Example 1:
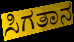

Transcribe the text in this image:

ಸಿಗತಾನ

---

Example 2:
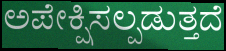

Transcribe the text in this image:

ಅಪೇಕ್ಷಿಸಲ್ಪಡುತ್ತದೆ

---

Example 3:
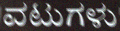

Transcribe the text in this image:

ವಟುಗಳು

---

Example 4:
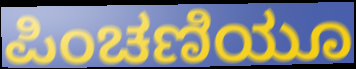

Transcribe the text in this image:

ಪಿಂಚಣಿಯೂ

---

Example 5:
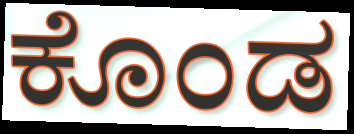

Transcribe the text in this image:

ಕೊಂಡ